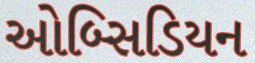
ઓબ્સિડિયન